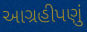
આગ્રહીપણું